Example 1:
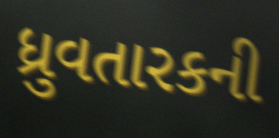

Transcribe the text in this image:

ધ્રુવતારકની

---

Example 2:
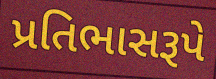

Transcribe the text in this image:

પ્રતિભાસરૂપે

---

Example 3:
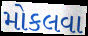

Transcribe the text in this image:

મોકલવા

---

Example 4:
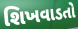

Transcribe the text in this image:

શિખવાડતો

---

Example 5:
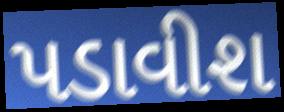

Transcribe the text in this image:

પડાવીશ